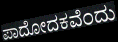
ಪಾದೋದಕವೆಂದು